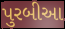
પુરબીઆ